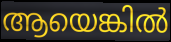
ആയെങ്കിൽ